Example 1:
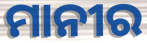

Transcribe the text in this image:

ମାନୀର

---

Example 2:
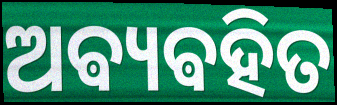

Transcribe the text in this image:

ଅଵ୍ୟଵହିତ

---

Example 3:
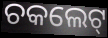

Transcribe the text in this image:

ଚକଲେଟ୍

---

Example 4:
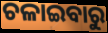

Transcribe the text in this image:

ଚଳାଇବାରୁ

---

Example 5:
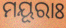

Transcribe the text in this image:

ମୟୂରାଃ